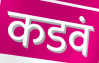
कडवं